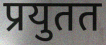
प्रयुतत